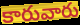
కారువారు